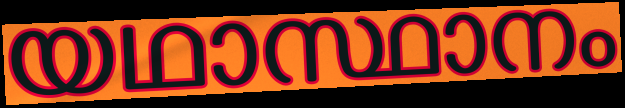
യഥാസ്ഥാനം